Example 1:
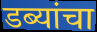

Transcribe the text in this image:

डब्यांचा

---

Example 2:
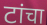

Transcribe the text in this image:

टांचा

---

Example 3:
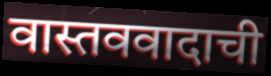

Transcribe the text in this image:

वास्तववादाची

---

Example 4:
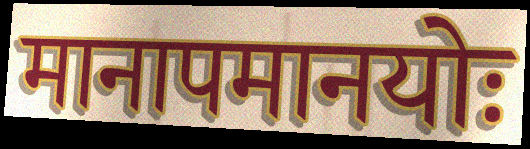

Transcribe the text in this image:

मानापमानयोः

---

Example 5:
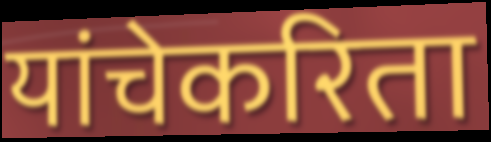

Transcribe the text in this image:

यांचेकरिता